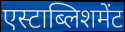
एस्टाब्लिशमेंट